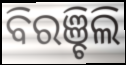
ବିରଞ୍ଚିଲି